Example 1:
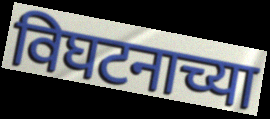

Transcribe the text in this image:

विघटनाच्या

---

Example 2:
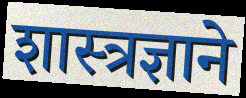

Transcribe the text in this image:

शास्त्रज्ञाने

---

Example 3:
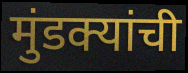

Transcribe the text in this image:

मुंडक्यांची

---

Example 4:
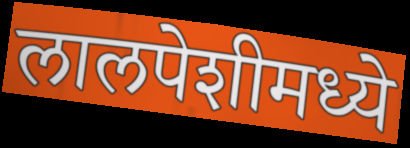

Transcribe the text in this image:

लालपेशीमध्ये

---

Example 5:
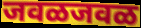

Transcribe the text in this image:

जवळजवळ